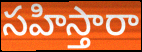
సహిస్తారా